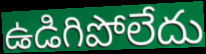
ఉడిగిపోలేదు